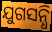
ଯୁଗସନ୍ଧି